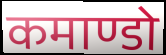
कमाण्डो